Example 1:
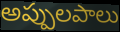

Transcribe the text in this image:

అప్పులపాలు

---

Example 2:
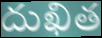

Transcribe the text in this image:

దుఖిత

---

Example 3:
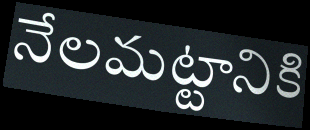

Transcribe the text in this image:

నేలమట్టానికి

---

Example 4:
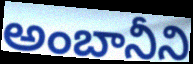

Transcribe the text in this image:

అంబానీని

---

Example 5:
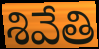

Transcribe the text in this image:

శివేతి